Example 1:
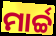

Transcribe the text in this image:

ମାର୍ଚ୍ଚ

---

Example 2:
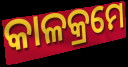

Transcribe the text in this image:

କାଳକ୍ରମେ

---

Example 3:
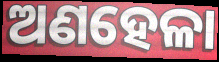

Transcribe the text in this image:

ଅଣହେଳା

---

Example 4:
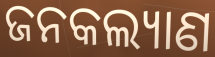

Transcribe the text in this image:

ଜନକଲ୍ୟାଣ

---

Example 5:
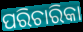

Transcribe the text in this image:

ପରିଚାରିକା